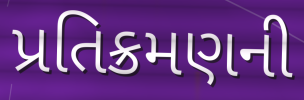
પ્રતિક્રમણની